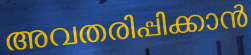
അവതരിപ്പിക്കാൻ